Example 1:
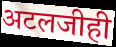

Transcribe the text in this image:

अटलजीही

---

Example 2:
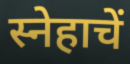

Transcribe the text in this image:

स्नेहाचें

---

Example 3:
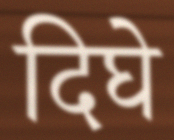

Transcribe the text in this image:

दिघे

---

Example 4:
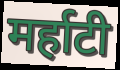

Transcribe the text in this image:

मर्हाटी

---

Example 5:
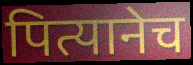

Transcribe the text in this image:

पित्यानेच